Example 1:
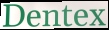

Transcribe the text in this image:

Dentex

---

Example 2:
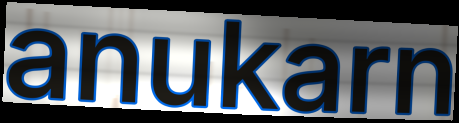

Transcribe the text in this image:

anukarn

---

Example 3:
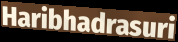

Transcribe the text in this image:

Haribhadrasuri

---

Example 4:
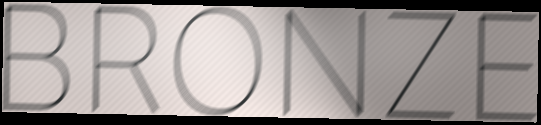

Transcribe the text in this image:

BRONZE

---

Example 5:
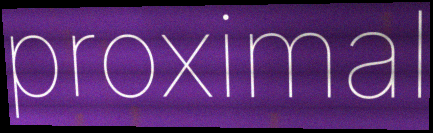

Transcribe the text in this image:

proximal